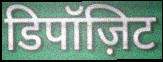
डिपॉज़िट